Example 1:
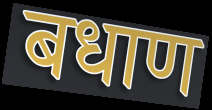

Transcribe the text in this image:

बधाण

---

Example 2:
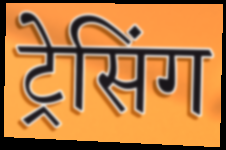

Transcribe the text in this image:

ट्रेसिंग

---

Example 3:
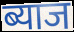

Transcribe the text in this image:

ब्‍याज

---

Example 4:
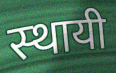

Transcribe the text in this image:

स्‍थायी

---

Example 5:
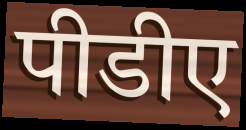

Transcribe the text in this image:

पीडीए